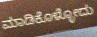
ಮಾಡಿಕೊಳ್ಳೋದು